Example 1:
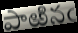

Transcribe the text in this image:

పాఱినఁ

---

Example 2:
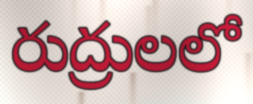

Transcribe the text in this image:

రుద్రులలో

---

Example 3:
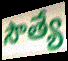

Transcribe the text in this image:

సౌత్యే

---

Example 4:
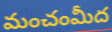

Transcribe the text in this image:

మంచంమీద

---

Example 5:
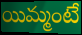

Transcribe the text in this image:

యిమ్మంటే